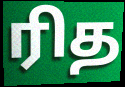
ரித